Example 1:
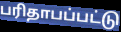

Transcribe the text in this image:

பரிதாபப்பட்டு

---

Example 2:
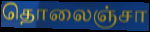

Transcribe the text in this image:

தொலைஞ்சா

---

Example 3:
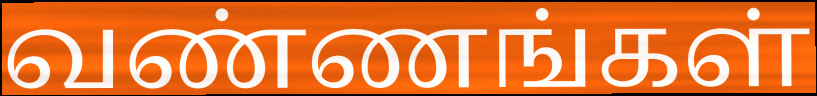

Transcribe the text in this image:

வண்ணங்கள்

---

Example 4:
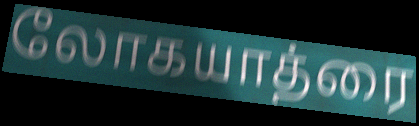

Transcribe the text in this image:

லோகயாத்ரை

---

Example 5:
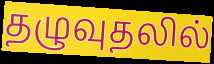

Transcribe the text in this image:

தழுவுதலில்